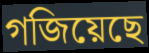
গজিয়েছে